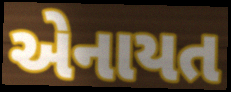
એનાયત